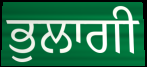
ਭੁਲਾਗੀ